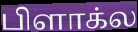
பிளாக்ல